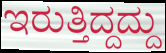
ಇರುತ್ತಿದ್ದದ್ದು